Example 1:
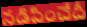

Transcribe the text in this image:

నడిపించేదీ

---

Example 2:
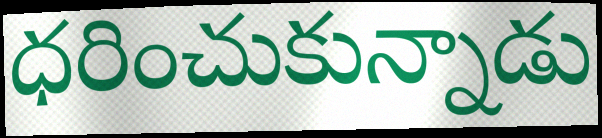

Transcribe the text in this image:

ధరించుకున్నాడు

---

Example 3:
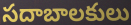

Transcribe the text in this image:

సదాబాలకులు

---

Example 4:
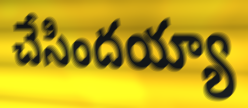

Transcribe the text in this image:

చేసిందయ్యా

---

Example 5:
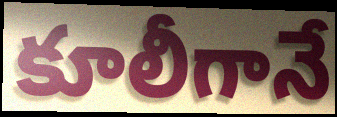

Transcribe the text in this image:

కూలీగానే